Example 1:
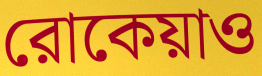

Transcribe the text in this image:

রোকেয়াও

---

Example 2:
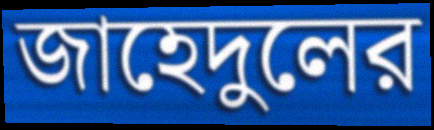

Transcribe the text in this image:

জাহেদুলের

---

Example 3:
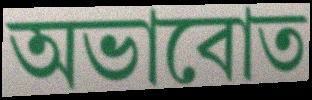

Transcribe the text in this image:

অভাবোত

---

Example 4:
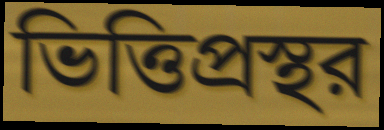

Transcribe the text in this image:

ভিত্তিপ্রস্থর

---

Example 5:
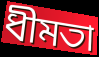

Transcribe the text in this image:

ধীমতা